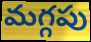
మగ్గపు